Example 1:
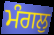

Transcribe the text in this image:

ਮੰਗਲੁ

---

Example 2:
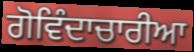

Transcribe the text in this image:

ਗੋਵਿੰਦਾਚਾਰੀਆ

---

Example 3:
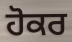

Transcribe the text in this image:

ਹੋਕਰ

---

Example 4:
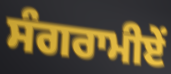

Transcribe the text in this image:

ਸੰਗਰਾਮੀਏਂ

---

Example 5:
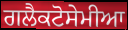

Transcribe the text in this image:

ਗਲੈਕਟੋਸੇਮੀਆ